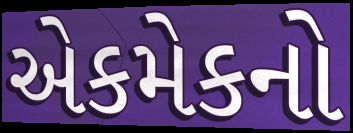
એકમેકનો